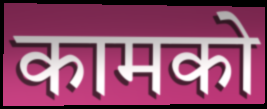
कामको